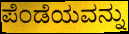
ಪೆಂಡೆಯವನ್ನು